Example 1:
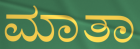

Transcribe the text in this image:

ಮಾತಾ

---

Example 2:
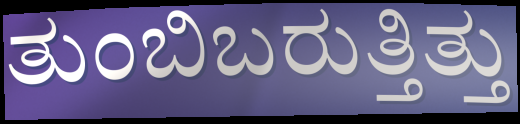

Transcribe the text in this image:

ತುಂಬಿಬರುತ್ತಿತ್ತು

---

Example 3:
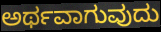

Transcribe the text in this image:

ಅರ್ಥವಾಗುವುದು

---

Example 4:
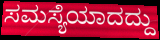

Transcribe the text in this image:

ಸಮಸ್ಯೆಯಾದದ್ದು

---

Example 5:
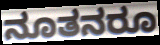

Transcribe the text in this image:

ನೂತನರೂ